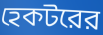
হেকটরের